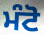
ਮੰਟੋ